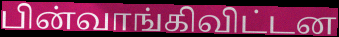
பின்வாங்கிவிட்டன